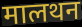
मालथन